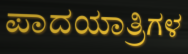
ಪಾದಯಾತ್ರಿಗಳ